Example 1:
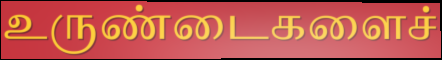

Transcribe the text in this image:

உருண்டைகளைச்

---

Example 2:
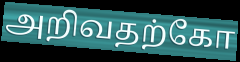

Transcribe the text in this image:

அறிவதற்கோ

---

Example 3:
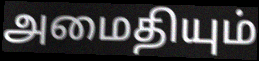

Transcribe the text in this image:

அமைதியும்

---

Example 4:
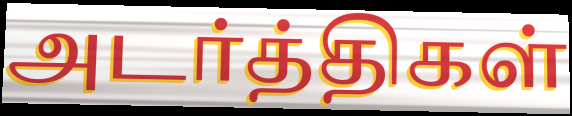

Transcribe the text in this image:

அடர்த்திகள்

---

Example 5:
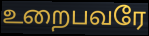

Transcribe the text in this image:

உறைபவரே